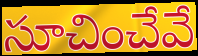
సూచించేవే